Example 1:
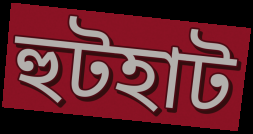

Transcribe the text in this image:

হুটহাট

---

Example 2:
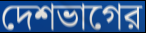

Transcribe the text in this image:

দেশভাগের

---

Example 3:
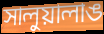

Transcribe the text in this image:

সালুয়ালাঙ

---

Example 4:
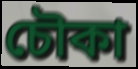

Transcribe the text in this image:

চৌকা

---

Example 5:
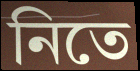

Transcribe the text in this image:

নিতে